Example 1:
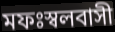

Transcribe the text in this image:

মফঃস্বলবাসী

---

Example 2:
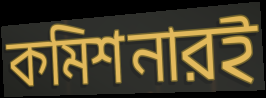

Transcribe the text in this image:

কমিশনারই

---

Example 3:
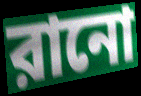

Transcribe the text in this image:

রানো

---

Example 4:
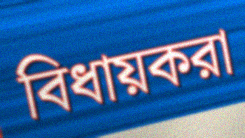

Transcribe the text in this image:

বিধায়করা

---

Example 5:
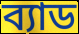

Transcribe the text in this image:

ব্যাড